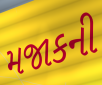
મજાકની